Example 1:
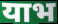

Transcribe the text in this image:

याभ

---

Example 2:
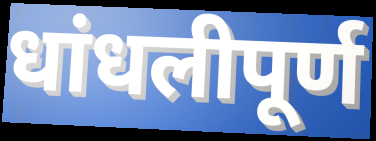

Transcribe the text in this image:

धांधलीपूर्ण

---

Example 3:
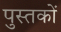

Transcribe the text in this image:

पुस्‍तकों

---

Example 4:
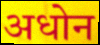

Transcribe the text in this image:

अधोन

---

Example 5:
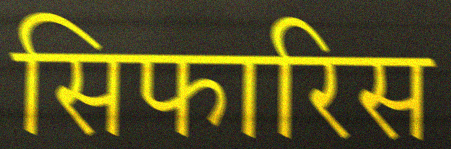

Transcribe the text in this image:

सिफारिस